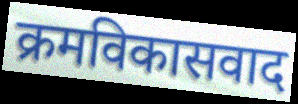
क्रमविकासवाद